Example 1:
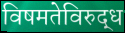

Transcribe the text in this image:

विषमतेविरुद्ध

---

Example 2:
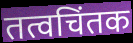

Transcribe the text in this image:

तत्वचिंतक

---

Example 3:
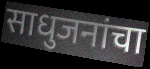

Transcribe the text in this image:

साधुजनांचा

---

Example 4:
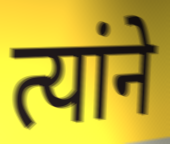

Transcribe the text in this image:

त्यांने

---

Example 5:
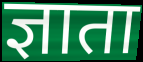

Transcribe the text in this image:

ज्ञाता